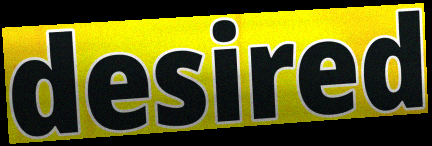
desired